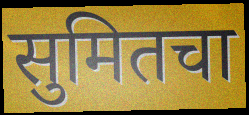
सुमितचा